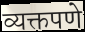
व्यक्तपणे